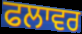
ਫਲਾਵਰ